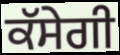
ਕੱਸੇਗੀ